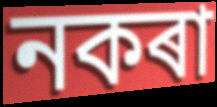
নকৰা